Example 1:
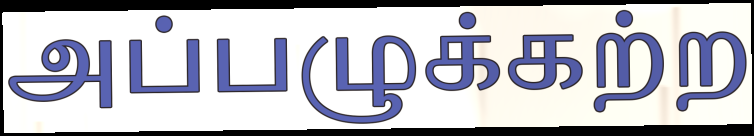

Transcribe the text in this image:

அப்பழுக்கற்ற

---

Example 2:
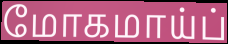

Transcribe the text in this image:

மோகமாய்ப்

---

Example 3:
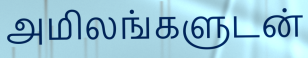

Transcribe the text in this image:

அமிலங்களுடன்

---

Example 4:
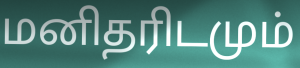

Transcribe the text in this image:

மனிதரிடமும்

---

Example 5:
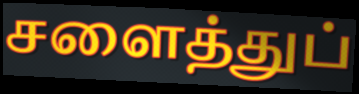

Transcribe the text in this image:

சளைத்துப்